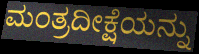
ಮಂತ್ರದೀಕ್ಷೆಯನ್ನು